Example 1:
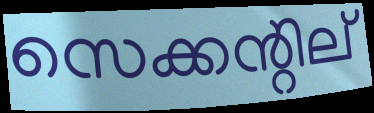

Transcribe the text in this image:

സെക്കന്റില്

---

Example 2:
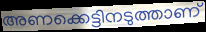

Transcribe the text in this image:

അണക്കെട്ടിനടുത്താണ്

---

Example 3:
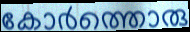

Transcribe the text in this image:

കോർത്തൊരു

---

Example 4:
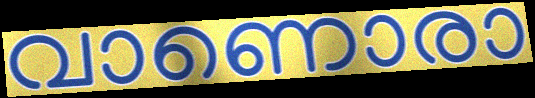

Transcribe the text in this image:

വാണൊരാ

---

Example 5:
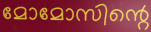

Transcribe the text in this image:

മോമോസിന്റെ